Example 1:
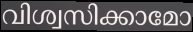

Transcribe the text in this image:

വിശ്വസിക്കാമോ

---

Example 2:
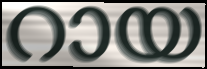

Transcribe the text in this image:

റായ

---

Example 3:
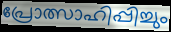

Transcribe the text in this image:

പ്രോത്സാഹിപ്പിച്ചും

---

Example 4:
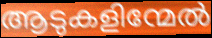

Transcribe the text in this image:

ആടുകളിന്മേൽ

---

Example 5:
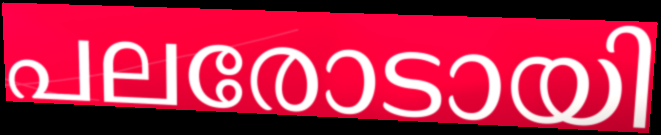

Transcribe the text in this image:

പലരോടായി